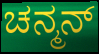
ಚನ್ಮನ್